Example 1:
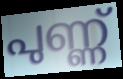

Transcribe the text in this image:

പുണ്ണ്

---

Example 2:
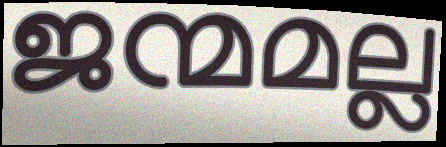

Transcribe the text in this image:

ജന്മമല്ല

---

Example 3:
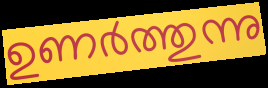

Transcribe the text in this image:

ഉണർത്തുന്നു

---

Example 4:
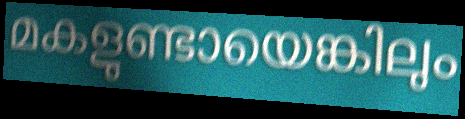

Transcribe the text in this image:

മകളുണ്ടായെങ്കിലും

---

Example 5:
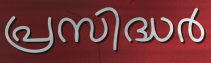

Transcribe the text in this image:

പ്രസിദ്ധർ